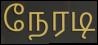
நேரடி